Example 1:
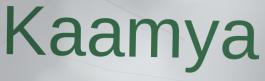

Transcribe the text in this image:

Kaamya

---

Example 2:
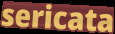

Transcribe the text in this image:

sericata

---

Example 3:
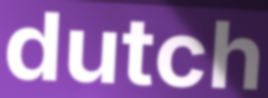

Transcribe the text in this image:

dutch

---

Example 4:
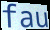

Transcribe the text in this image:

fau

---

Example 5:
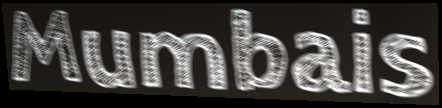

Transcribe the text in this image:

Mumbais